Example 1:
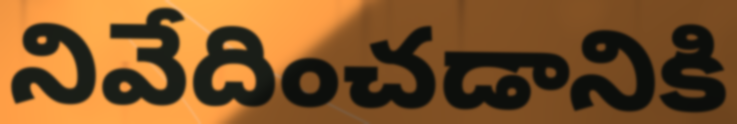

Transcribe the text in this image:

నివేదించడానికి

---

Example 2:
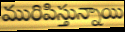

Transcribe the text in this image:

మురిపిస్తున్నాయి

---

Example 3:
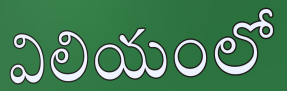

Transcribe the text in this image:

విలియంలో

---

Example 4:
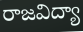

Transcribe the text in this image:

రాజవిద్యా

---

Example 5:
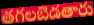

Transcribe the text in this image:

తగలబెడతారు